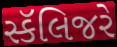
સ્કૅલિજરે